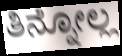
ತಿನ್ನೋಲ್ಲ